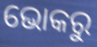
ଭୋକରୁ